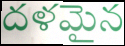
దళమైన